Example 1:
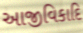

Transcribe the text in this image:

આજીવિકાદિ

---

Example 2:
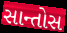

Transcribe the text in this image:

સાન્તોસ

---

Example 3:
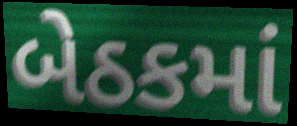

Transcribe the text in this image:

બેઠકમાં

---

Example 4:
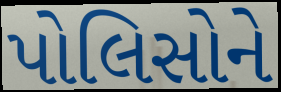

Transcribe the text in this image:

પોલિસોને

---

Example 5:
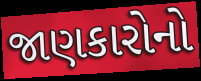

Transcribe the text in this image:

જાણકારોનો